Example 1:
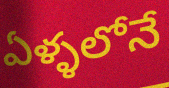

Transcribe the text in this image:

ఏళ్ళలోనే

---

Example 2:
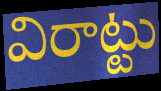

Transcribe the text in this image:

విరాట్టు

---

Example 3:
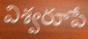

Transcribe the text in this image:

విశ్వరూపే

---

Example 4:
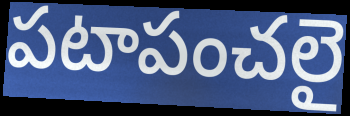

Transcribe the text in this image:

పటాపంచలై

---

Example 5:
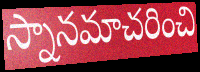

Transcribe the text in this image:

స్నానమాచరించి